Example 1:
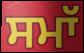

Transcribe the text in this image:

ਸਮਾੱ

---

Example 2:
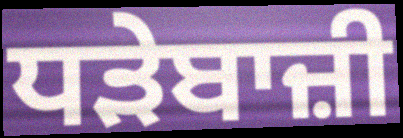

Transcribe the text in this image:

ਧੜੇਬਾਜ਼ੀ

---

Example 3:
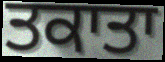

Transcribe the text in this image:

ਤਕਾਤਾ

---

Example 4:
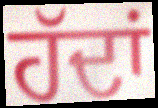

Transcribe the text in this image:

ਹੱਦਾਂ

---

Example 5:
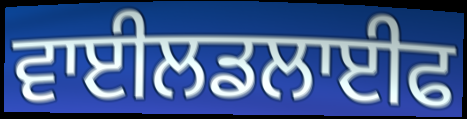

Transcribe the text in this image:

ਵਾਈਲਡਲਾਈਫ